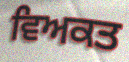
ਵਿਅਕਤ